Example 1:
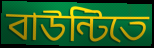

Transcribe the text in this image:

বাউন্টিতে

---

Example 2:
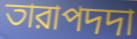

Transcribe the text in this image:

তারাপদদা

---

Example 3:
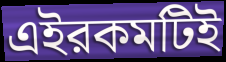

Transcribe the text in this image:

এইরকমটিই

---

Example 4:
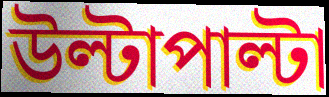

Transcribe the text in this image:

উল্টাপাল্টা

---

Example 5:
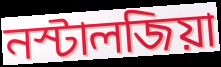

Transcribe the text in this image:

নস্টালজিয়া